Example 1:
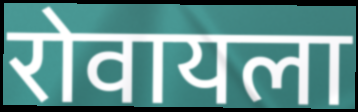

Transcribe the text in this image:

रोवायला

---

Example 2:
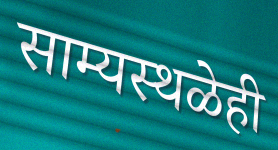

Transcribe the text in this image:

साम्यस्थळेही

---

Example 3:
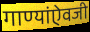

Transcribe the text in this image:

गाण्यांऐवजी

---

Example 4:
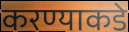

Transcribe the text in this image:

करण्याकडे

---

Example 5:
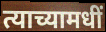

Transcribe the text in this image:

त्याच्यामधीं